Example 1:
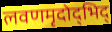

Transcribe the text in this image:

लवणमृदोद्भिद्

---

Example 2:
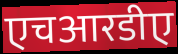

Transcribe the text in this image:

एचआरडीए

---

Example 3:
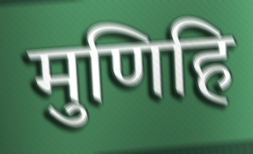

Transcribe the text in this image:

मुणिहि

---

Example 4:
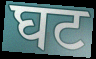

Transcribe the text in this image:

घट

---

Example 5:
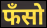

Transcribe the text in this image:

फँसो